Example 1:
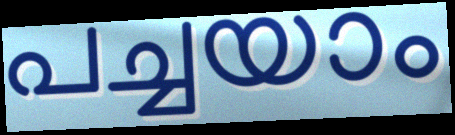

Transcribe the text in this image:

പച്ചയാം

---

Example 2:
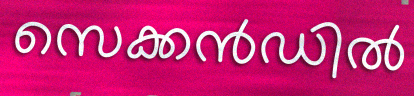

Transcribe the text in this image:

സെക്കൻഡിൽ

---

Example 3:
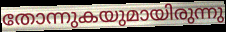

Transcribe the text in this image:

തോന്നുകയുമായിരുന്നു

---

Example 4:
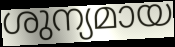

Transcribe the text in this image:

ശുന്യമായ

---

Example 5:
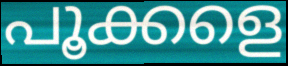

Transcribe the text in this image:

പൂക്കളെ